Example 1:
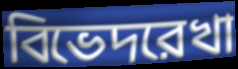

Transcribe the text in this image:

বিভেদরেখা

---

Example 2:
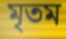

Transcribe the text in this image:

মৃতম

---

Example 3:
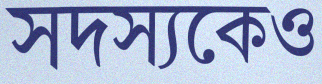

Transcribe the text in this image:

সদস্যকেও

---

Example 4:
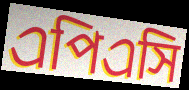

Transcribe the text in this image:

এপিএসি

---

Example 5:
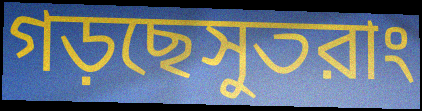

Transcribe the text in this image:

গড়ছেসুতরাং